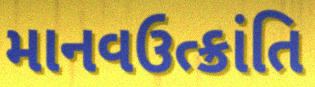
માનવઉત્ક્રાંતિ